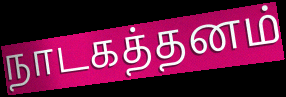
நாடகத்தனம்